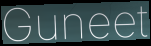
Guneet